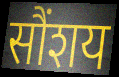
सौंशय